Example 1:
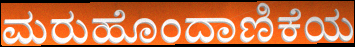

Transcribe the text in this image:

ಮರುಹೊಂದಾಣಿಕೆಯ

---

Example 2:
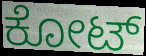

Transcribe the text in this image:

ಕೋಟ್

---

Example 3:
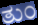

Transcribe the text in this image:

ತುಂ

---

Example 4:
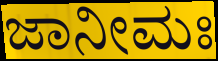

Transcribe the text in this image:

ಜಾನೀಮಃ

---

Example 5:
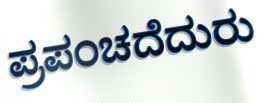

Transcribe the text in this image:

ಪ್ರಪಂಚದೆದುರು